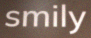
smily